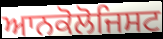
ਆਨਕੋਲੋਜਿਸਟ